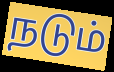
நடும்